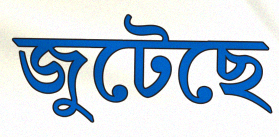
জুটেছে